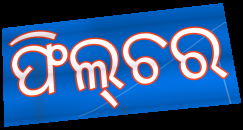
ଫିଲ୍‌ଚର